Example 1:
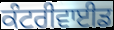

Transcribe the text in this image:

ਕੰਟਰੀਵਾਈਡ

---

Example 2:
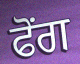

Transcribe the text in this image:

ਫੋਂਗ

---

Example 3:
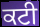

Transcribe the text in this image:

ਕਟੀ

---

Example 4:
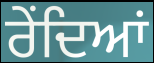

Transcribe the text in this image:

ਰੇਂਦਿਆਂ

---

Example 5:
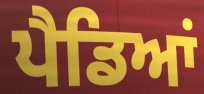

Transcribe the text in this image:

ਪੈਡਿਆਂ